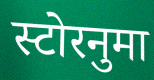
स्टोरनुमा